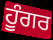
ਹੂੰਗਰ